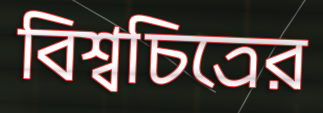
বিশ্বচিত্রের